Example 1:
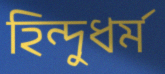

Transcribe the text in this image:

হিন্দুধর্ম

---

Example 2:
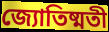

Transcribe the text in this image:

জ্যোতিষ্মতী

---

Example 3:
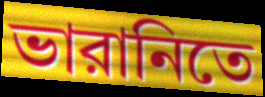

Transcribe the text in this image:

ভারানিতে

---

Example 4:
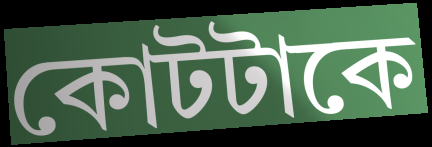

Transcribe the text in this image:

কোটটাকে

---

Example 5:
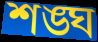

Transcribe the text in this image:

শঙ্ঘ